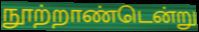
நூற்றாண்டென்று